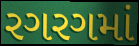
રગરગમાં